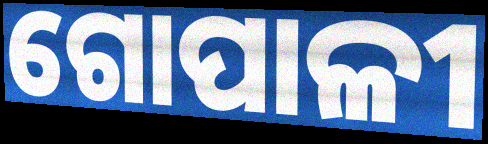
ଗୋପାଳୀ